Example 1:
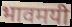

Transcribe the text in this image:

भावमयी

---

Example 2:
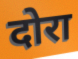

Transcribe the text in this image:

दोरा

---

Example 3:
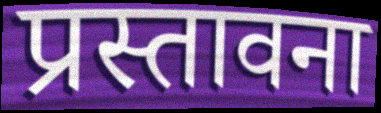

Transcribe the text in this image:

प्रस्तावना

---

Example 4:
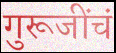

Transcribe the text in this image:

गुरूजींचं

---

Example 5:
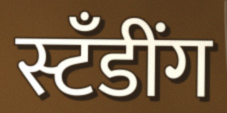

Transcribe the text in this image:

स्टँडींग